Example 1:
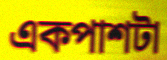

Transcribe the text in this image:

একপাশটা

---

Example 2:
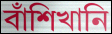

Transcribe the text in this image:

বাঁশিখানি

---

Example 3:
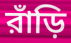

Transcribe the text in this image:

রাঁড়ি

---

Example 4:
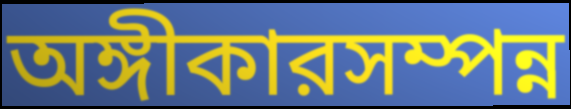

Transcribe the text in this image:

অঙ্গীকারসম্পন্ন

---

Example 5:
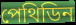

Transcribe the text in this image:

পেথিডিন